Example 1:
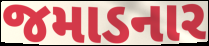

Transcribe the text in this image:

જમાડનાર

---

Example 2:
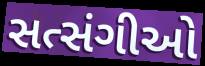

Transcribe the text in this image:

સત્સંગીઓ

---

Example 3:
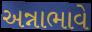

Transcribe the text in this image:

અન્નાભાવે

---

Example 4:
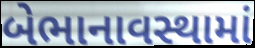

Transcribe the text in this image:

બેભાનાવસ્થામાં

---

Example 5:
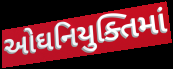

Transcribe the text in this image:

ઓઘનિયુક્તિમાં